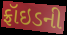
ફ્રૉઇડની